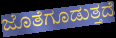
ಜೊತೆಗೂಡುತ್ತದೆ